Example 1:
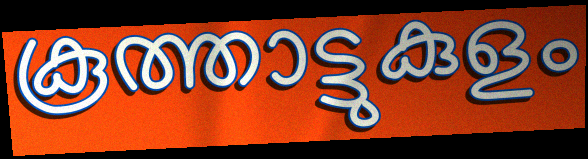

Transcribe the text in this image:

കൂത്താട്ടുകുളം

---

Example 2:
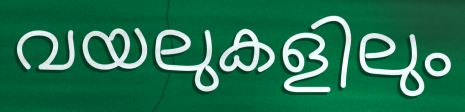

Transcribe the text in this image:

വയലുകളിലും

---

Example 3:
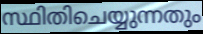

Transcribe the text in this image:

സ്ഥിതിചെയ്യുന്നതും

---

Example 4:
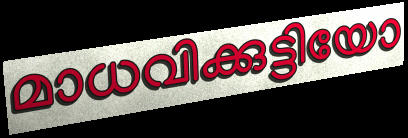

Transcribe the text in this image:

മാധവിക്കുട്ടിയോ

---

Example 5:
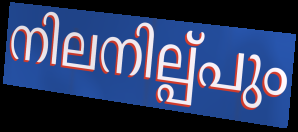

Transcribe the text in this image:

നിലനില്പ്പും